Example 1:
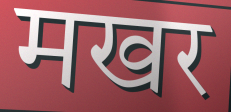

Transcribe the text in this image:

मखर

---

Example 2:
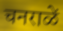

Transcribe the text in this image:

चनराळें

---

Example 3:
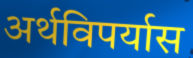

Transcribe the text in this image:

अर्थविपर्यास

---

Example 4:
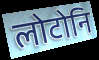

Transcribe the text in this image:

लोटोनि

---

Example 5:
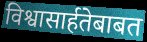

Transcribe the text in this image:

विश्वासार्हतेबाबत